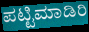
ಪಟ್ಟಿಮಾಡಿರಿ